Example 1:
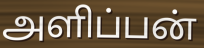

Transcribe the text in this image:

அளிப்பன்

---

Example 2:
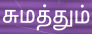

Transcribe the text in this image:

சுமத்தும்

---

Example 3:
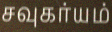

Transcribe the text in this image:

சவுகர்யம்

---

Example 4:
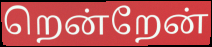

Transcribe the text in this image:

றென்றேன்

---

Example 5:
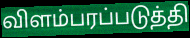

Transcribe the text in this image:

விளம்பரப்படுத்தி